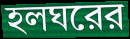
হলঘরের